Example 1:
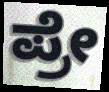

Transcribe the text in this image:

ಪ್ರೇ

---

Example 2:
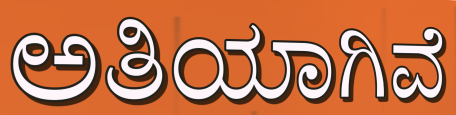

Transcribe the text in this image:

ಅತಿಯಾಗಿವೆ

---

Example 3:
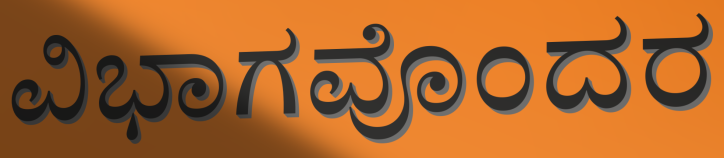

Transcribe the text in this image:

ವಿಭಾಗವೊಂದರ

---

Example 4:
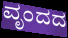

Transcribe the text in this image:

ವೃಂದದ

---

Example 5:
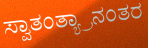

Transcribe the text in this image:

ಸ್ವಾತಂತ್ಯ್ರಾನಂತರ